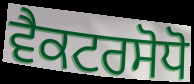
ਵੈਕਟਰਸੋਧੋ